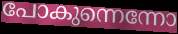
പോകുന്നെന്നോ